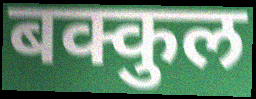
बक्कुल